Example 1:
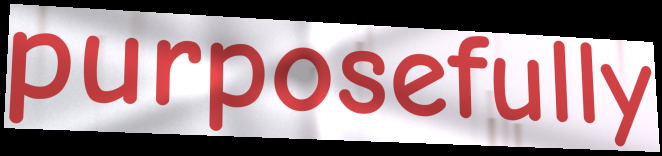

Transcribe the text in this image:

purposefully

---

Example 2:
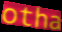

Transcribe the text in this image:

otha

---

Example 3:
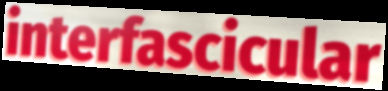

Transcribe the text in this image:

interfascicular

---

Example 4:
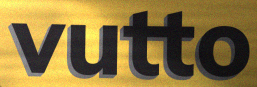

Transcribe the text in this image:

vutto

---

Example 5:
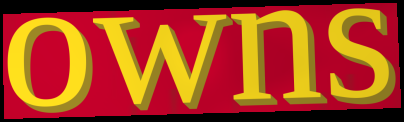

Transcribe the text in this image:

owns